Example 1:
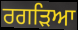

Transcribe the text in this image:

ਰਗੜਿਆ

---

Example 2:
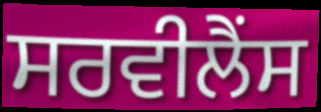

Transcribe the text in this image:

ਸਰਵੀਲੈਂਸ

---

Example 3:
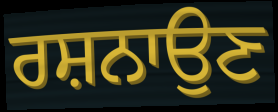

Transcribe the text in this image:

ਰਸ਼ਨਾਉਣ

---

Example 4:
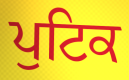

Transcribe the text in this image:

ਪੁਟਿਕ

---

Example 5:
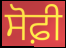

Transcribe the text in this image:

ਸੋਫ਼ੀ